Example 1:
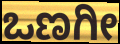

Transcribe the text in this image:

ಒಣಗೀ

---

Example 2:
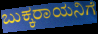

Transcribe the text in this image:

ಬುಕ್ಕರಾಯನಿಗೆ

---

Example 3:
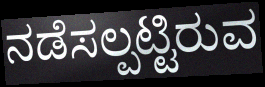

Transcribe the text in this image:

ನಡೆಸಲ್ಪಟ್ಟಿರುವ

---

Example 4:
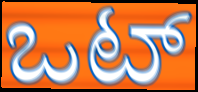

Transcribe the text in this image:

ಒಟ್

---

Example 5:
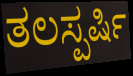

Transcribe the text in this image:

ತಲಸ್ಪರ್ಷಿ